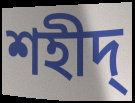
শহীদ্